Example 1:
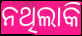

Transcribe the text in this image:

ନଥିଲାକି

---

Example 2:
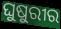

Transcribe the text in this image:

ଘୁଷୁରୀର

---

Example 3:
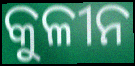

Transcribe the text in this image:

କୁଳୀନ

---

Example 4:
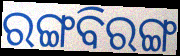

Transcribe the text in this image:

ରଙ୍ଗବିରଙ୍ଗ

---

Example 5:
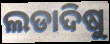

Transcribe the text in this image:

ଲଡାଦିଷୁ